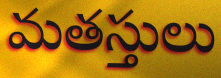
మతస్తులు